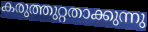
കരുത്തുറ്റതാക്കുന്നു